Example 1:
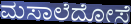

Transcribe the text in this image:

ಮಸಾಲೆದೋಸೆ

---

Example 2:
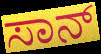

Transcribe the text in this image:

ಸಾನ್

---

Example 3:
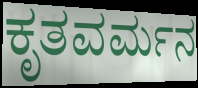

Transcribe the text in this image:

ಕೃತವರ್ಮನ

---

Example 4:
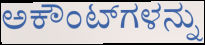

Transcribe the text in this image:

ಅಕೌಂಟ್‌ಗಳನ್ನು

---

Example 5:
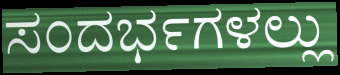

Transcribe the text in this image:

ಸಂದರ್ಭಗಳಲ್ಲು